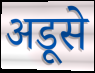
अडूसे